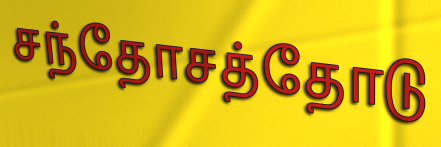
சந்தோசத்தோடு